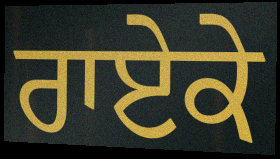
ਰਾਏਕੇ